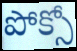
పోక్సో